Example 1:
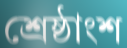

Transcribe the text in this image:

শ্রেষ্ঠাংশ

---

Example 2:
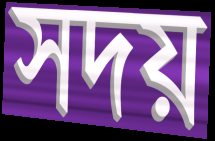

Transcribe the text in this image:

সদয়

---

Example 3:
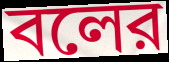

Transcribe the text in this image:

বলের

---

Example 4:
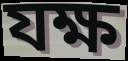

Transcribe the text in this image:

যক্ষ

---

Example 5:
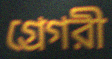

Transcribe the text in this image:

গ্রেগরী